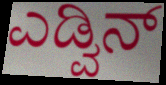
ಎಡ್ವಿನ್